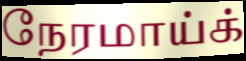
நேரமாய்க்